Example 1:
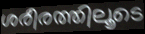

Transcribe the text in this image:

ശരീരത്തിലൂടെ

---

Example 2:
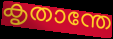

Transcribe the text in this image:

കൃതാന്തേ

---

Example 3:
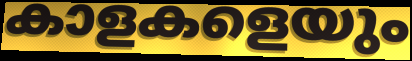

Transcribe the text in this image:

കാളകളെയും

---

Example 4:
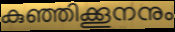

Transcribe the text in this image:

കുഞ്ഞിക്കൂനനും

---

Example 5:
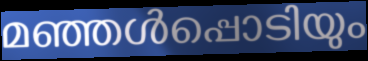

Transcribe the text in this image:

മഞ്ഞൾപ്പൊടിയും